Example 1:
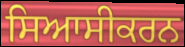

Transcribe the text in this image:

ਸਿਆਸੀਕਰਨ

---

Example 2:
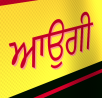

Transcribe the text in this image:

ਆਉਗੀ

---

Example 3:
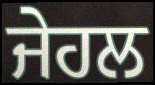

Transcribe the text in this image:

ਜੇਹਲ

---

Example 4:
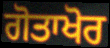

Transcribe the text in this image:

ਗੋਤਾਖੋਰ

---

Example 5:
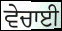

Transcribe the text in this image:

ਵੇਚਾਈ